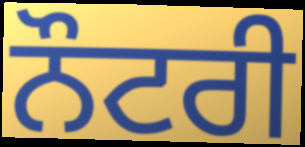
ਨੌਟਰੀ